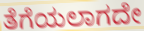
ತೆಗೆಯಲಾಗದೇ